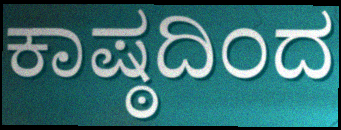
ಕಾಷ್ಠದಿಂದ